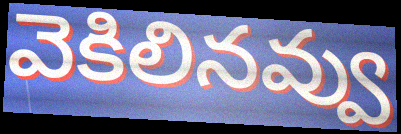
వెకిలినవ్వు